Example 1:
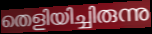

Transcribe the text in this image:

തെളിയിച്ചിരുന്നു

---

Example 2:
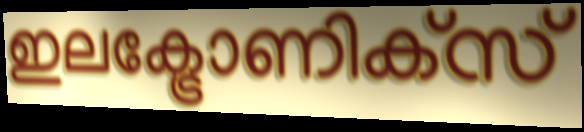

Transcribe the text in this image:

ഇലക്ട്രോണിക്‌സ്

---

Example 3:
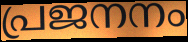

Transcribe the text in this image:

പ്രജനനം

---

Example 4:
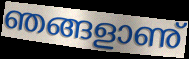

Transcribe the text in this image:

ഞങ്ങളാണു്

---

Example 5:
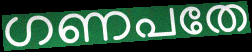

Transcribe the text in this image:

ഗണപതേ